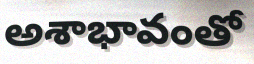
అశాభావంతో